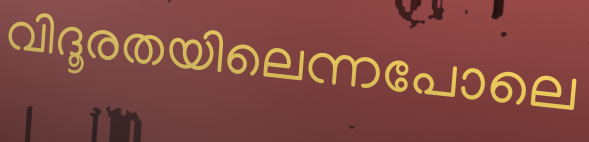
വിദൂരതയിലെന്നപോലെ